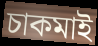
চাকমাই